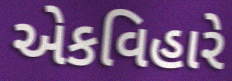
એકવિહારે